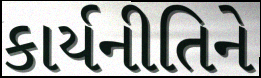
કાર્યનીતિને